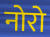
नोरो